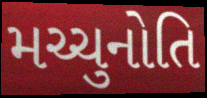
મચ્ચુનોતિ